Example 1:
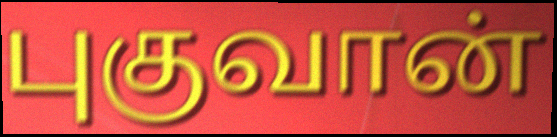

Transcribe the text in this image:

புகுவான்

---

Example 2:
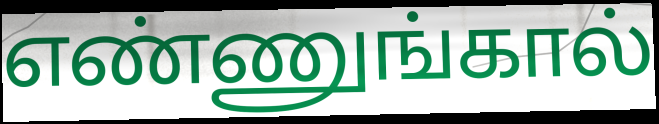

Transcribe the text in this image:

எண்ணுங்கால்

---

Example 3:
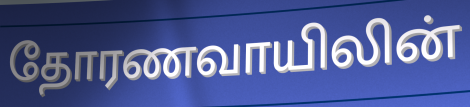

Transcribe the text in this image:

தோரணவாயிலின்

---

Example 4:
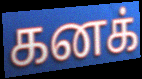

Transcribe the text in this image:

கனக்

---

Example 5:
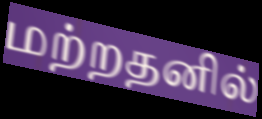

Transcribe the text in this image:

மற்றதனில்